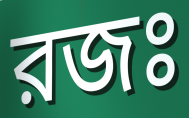
রজঃ